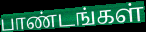
பாண்டங்கள்